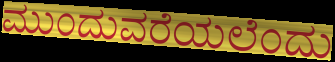
ಮುಂದುವರೆಯಲೆಂದು